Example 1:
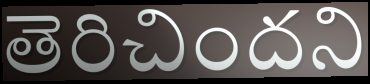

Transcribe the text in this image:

తెరిచిందని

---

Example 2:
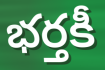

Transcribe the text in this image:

భర్తకీ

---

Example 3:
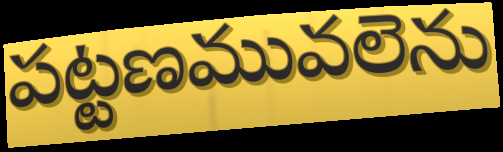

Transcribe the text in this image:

పట్టణమువలెను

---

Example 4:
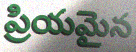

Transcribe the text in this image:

ప్రియమైన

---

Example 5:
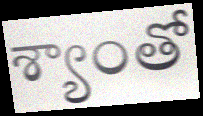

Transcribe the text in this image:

శ్యాంతో